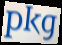
pkg